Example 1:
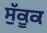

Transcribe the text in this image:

ਸੁੱਕੂਕ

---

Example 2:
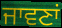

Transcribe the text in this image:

ਜਾਵਣਾਂ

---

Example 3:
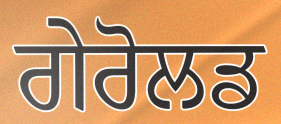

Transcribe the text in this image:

ਗੇਰੋਲਡ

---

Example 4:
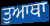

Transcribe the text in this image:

ਤੁਆਥਾ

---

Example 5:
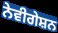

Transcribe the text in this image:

ਨੇਵੀਗੇਸ਼ਨ